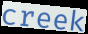
creek